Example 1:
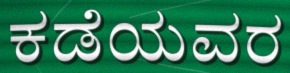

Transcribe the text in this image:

ಕಡೆಯವರ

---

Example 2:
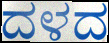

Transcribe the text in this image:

ದಳದ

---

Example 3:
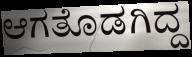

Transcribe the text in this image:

ಆಗತೊಡಗಿದ್ದ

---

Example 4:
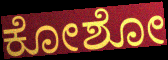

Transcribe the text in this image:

ಕೋಶೋ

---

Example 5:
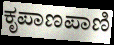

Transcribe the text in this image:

ಕೃಪಾಣಪಾಣಿ